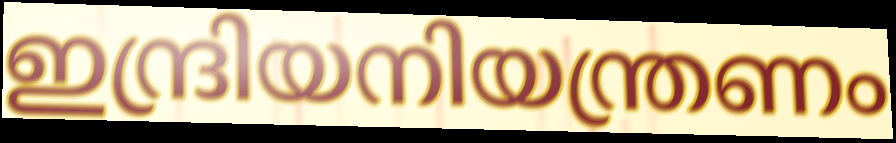
ഇന്ദ്രിയനിയന്ത്രണം